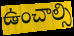
ఉంచాల్సి